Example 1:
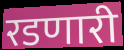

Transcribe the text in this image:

रडणारी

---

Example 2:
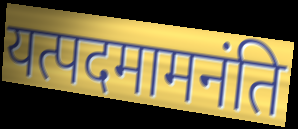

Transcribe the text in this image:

यत्पदमामनंति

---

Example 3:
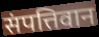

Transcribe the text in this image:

संपत्तिवान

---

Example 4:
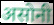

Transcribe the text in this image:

असोनी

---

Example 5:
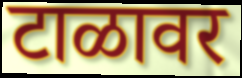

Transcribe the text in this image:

टाळावर